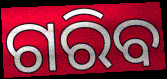
ଗରିବ